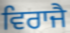
ਵਿਰਾਜੈ